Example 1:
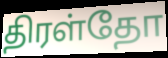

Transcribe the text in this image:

திரள்தோ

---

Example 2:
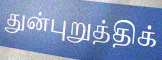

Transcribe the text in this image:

துன்புறுத்திக்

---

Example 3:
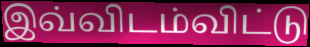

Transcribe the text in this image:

இவ்விடம்விட்டு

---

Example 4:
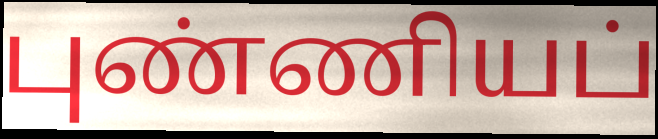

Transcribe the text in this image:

புண்ணியப்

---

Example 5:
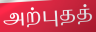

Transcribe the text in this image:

அற்புதத்